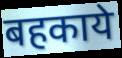
बहकाये